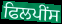
ਫਿਲਪੀਂਸ